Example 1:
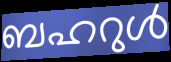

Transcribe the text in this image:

ബഹറുൾ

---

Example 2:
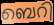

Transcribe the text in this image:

ബെറി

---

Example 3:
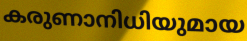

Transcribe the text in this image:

കരുണാനിധിയുമായ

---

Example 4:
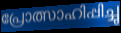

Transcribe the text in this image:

പ്രോത്സാഹിപ്പിച്ചു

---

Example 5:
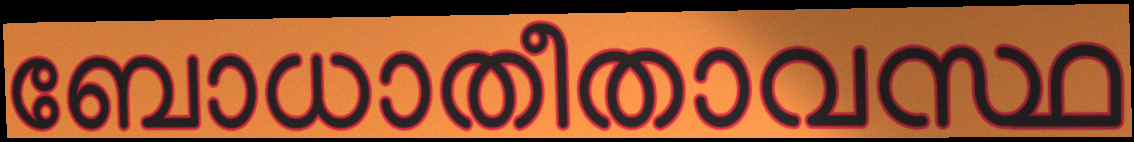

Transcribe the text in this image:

ബോധാതീതാവസ്ഥ